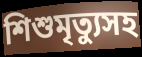
শিশুমৃত্যুসহ